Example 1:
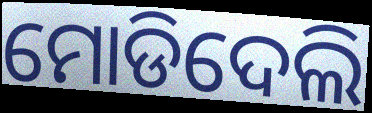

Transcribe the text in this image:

ମୋଡିଦେଲି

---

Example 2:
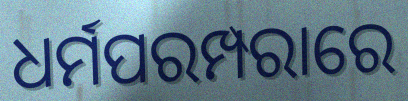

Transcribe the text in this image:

ଧର୍ମପରମ୍ପରାରେ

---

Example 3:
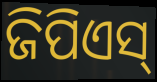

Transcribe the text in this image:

ଜିପିଏସ୍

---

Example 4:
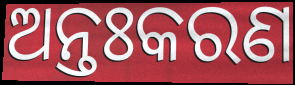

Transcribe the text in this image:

ଅନ୍ତଃକରଣ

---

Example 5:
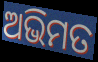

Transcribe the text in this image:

ଅଭିମତ